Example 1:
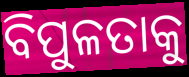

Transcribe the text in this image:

ବିପୁଳତାକୁ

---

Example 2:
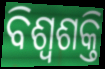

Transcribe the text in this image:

ବିଶ୍ଵଶକ୍ତି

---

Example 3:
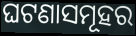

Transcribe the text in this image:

ଘଟଣାସମୂହର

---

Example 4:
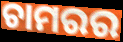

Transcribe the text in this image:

ଚାମରର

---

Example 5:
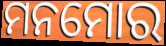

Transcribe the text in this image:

ମନମୋର